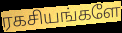
ரகசியங்களே